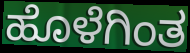
ಹೊಳೆಗಿಂತ